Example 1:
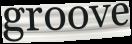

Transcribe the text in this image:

groove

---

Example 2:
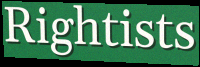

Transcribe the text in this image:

Rightists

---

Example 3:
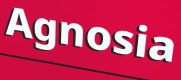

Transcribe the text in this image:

Agnosia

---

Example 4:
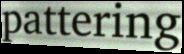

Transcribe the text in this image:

pattering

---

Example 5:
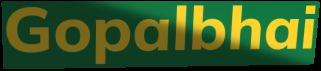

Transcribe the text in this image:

Gopalbhai